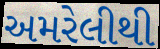
અમરેલીથી